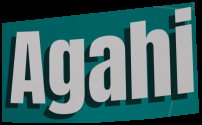
Agahi